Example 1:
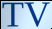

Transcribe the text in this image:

TV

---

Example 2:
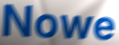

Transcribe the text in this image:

Nowe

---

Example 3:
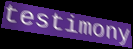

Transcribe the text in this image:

testimony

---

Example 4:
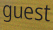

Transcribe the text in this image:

guest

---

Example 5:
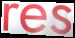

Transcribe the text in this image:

res